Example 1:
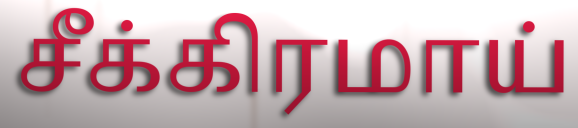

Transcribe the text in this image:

சீக்கிரமாய்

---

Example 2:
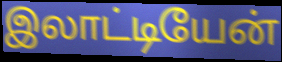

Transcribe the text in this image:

இலாட்டியேன்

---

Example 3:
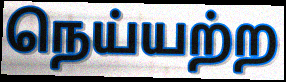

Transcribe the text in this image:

நெய்யற்ற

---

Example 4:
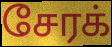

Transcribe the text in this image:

சேரக்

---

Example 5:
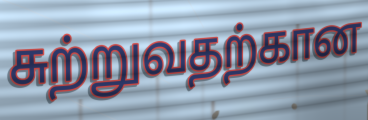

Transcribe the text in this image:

சுற்றுவதற்கான